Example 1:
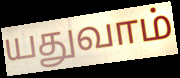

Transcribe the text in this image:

யதுவாம்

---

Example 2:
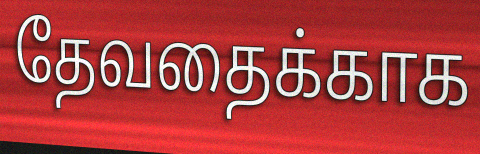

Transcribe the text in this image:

தேவதைக்காக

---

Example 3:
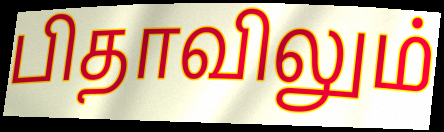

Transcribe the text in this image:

பிதாவிலும்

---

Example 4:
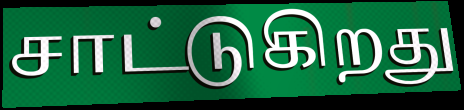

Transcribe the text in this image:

சாட்டுகிறது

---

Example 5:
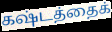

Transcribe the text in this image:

கஷ்டத்தைக்